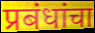
प्रबंधांचा